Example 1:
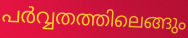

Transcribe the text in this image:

പർവ്വതത്തിലെങ്ങും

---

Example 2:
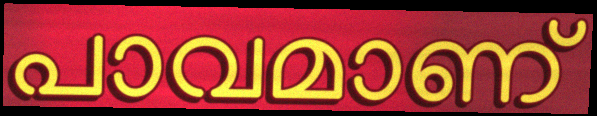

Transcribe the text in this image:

പാവമാണ്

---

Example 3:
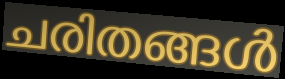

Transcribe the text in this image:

ചരിതങ്ങൾ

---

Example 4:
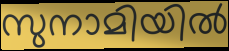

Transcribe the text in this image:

സുനാമിയിൽ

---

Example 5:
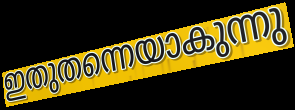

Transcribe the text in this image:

ഇതുതന്നെയാകുന്നു